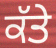
ਕੱਤੇ